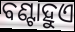
ବଣ୍ଟାହୁଏ